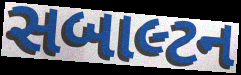
સબાલ્ટન